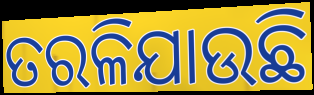
ତରଳିଯାଉଛି